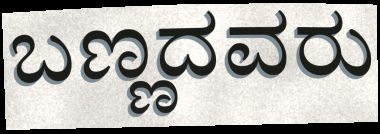
ಬಣ್ಣದವರು